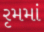
રૃમમાં